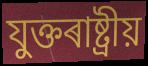
যুক্তৰাষ্ট্ৰীয়